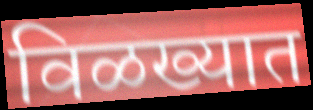
विळख्यात